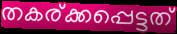
തകര്ക്കപ്പെട്ടത്